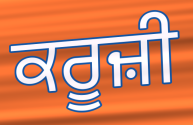
ਕਰੂਜ਼ੀ